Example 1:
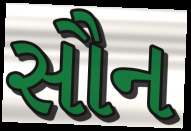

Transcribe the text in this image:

સૌન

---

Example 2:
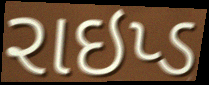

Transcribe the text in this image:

રાઇપ્ડ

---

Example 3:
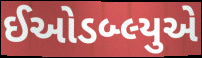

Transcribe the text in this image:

ઈઓડબ્લ્યુએ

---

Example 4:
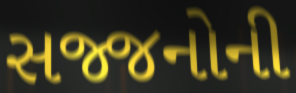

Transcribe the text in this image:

સજ્જનોની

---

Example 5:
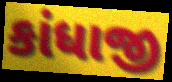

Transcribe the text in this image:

કાંધાજી